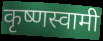
कृष्णस्वामी